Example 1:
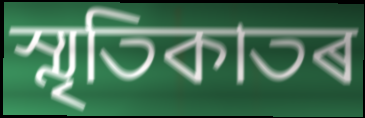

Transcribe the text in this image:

স্মৃতিকাতৰ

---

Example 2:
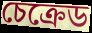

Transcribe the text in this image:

চেক্ৰেড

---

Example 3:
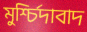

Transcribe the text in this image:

মুৰ্শ্চিদাবাদ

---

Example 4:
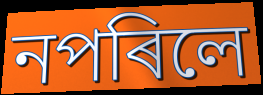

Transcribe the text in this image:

নপৰিলে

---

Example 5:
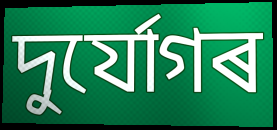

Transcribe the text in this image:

দুৰ্যোগৰ